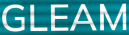
GLEAM